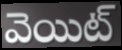
వెయిట్